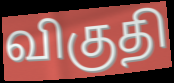
விகுதி